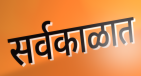
सर्वकाळात